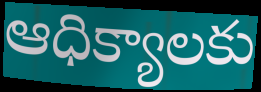
ఆధిక్యాలకు